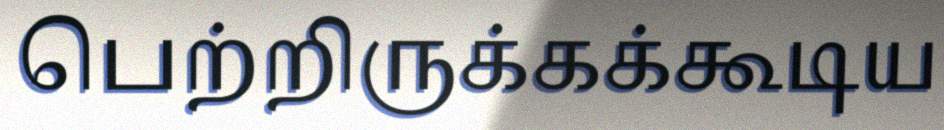
பெற்றிருக்கக்கூடிய